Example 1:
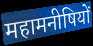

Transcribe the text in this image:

महामनीषियों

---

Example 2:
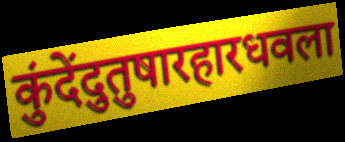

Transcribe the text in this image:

कुंदेंदुतुषारहारधवला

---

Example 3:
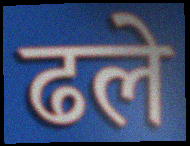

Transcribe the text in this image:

ढले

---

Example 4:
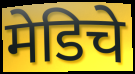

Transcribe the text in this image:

मेडिचे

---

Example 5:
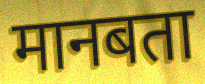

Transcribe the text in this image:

मानबता